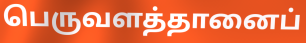
பெருவளத்தானைப்